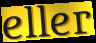
eller